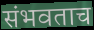
संभवताच